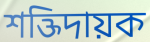
শক্তিদায়ক